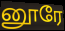
னூரே